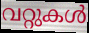
വറ്റുകൾ